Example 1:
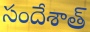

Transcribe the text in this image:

సందేశాత్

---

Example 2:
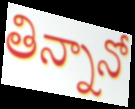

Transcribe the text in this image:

తిన్నానో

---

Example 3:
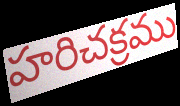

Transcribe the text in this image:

హరిచక్రము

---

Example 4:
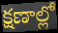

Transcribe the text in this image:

క్షణాల్లో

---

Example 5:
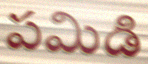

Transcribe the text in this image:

పమిడి